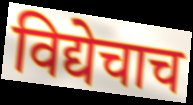
विद्येचाच